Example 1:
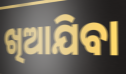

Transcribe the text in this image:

ଖିଆଯିବା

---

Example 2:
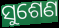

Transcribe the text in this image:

ସୁଶେଣ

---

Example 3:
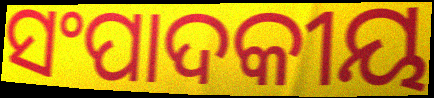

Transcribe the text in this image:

ସଂପାଦକୀୟ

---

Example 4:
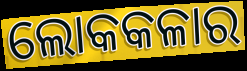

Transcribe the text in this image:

ଲୋକକଳାର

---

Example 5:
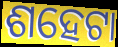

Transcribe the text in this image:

ଶହେଟା